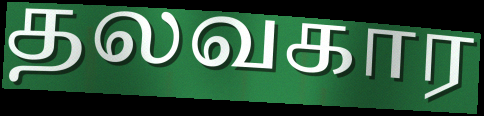
தலவகார